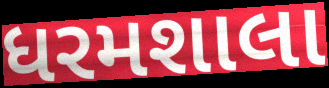
ધરમશાલા